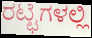
ರಟ್ಟೆಗಳಲ್ಲಿ